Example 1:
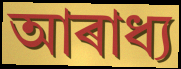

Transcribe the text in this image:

আৰাধ্য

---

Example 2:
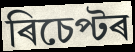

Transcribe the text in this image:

ৰিচেপ্টৰ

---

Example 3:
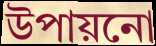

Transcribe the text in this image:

উপায়নো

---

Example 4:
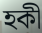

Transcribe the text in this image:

হকী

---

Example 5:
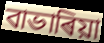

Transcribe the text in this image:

বাভাৰিয়া